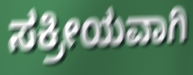
ಸಕ್ರೀಯವಾಗಿ